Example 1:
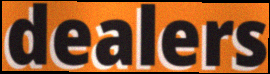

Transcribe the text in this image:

dealers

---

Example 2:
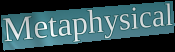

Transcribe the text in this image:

Metaphysical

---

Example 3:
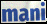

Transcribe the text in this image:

mani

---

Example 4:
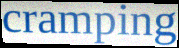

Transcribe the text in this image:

cramping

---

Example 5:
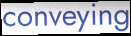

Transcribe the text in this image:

conveying